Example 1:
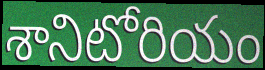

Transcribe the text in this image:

శానిటోరియం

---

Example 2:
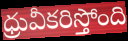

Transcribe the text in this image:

ధ్రువీకరిస్తోంది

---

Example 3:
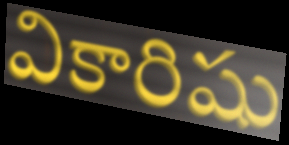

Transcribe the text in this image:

వికారిషు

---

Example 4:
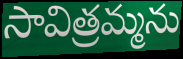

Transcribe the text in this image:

సావిత్రమ్మను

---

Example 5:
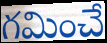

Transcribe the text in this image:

గమించే